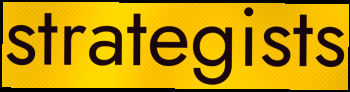
strategists